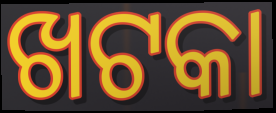
ଖଟକା